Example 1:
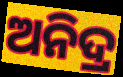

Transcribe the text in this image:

ଅନିଦ୍ର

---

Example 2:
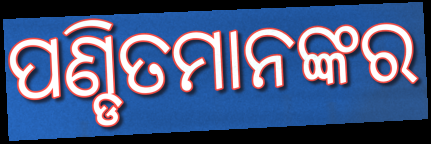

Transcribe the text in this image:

ପଣ୍ଡିତମାନଙ୍କର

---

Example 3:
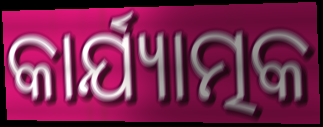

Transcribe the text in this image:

କାର୍ଯ୍ୟାତ୍ମକ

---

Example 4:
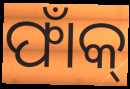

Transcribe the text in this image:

ଫାଁକ୍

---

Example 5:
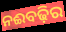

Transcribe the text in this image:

ନଈବଢ଼ିର